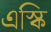
এস্কি